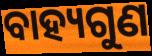
ବାହ୍ୟଗୁଣ